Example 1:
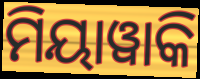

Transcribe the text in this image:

ମିୟାୱାକି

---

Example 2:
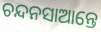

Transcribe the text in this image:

ଚନ୍ଦନସାଆନ୍ତେ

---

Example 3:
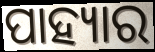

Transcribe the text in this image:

ପାହ୍ୟାର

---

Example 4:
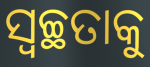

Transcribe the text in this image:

ସ୍ବଚ୍ଛତାକୁ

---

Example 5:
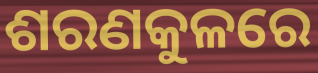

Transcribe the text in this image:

ଶରଣକୁଳରେ